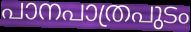
പാനപാത്രപുടം